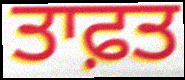
ਤਾਫ਼ਤ